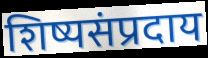
शिष्यसंप्रदाय